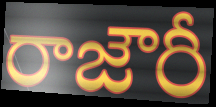
రాజౌరీ